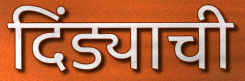
दिंड्याची